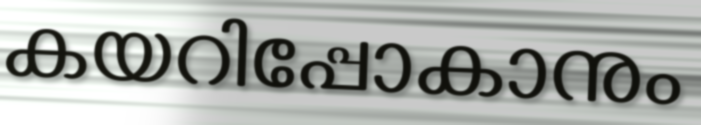
കയറിപ്പോകാനും